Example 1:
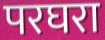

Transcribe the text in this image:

परघरा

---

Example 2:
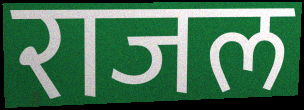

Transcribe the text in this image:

राजल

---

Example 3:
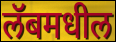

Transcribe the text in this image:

लॅबमधील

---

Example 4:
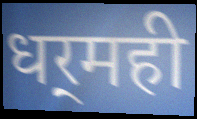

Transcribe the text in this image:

धर्मही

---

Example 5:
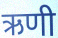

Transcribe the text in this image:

ऋणी